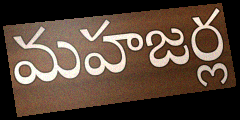
మహజర్ల